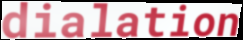
dialation